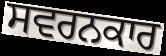
ਸਵਰਨਕਾਰ